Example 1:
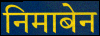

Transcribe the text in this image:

निमाबेन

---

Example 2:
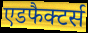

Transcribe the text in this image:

एडफैक्टर्स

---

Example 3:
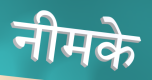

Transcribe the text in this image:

नीमके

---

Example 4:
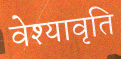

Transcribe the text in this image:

वेश्यावृति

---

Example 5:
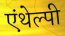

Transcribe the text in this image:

एंथेल्पी